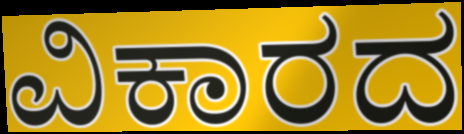
ವಿಕಾರದ